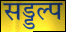
सड्डल्प